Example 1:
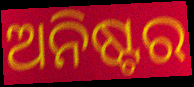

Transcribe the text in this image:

ଅନିଷ୍ଟର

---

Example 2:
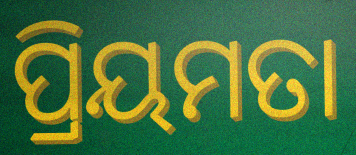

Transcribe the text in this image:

ପ୍ରିୟମତା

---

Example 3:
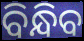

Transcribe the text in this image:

ବିନ୍ଧିବ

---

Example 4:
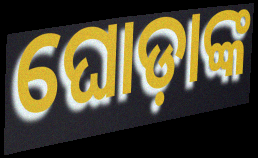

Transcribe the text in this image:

ଘୋଡ଼ାଙ୍କ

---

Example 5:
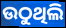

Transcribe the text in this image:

ଉଠୁଥିଲି